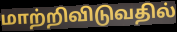
மாற்றிவிடுவதில்